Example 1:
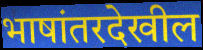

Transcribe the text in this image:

भाषांतरदेखील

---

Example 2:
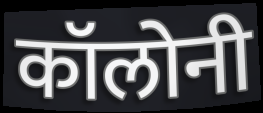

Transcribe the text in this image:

कॉलोनी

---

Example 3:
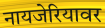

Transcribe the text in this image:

नायजेरियावर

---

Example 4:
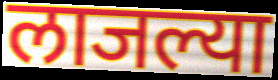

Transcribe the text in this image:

लाजल्या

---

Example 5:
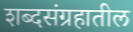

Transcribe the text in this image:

शब्दसंग्रहातील